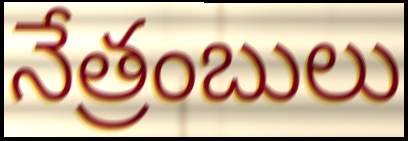
నేత్రంబులు